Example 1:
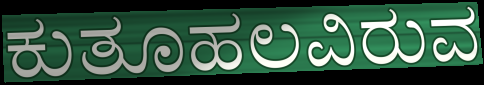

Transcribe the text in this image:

ಕುತೂಹಲವಿರುವ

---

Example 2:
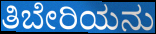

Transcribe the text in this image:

ತಿಬೇರಿಯನು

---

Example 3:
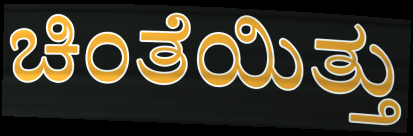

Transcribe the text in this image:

ಚಿಂತೆಯಿತ್ತು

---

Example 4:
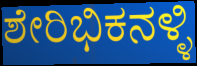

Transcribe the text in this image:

ಶೇರಿಭಿಕನಳ್ಳಿ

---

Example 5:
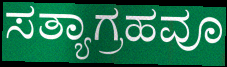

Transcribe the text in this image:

ಸತ್ಯಾಗ್ರಹವೂ